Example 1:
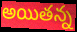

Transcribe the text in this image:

అయితన్న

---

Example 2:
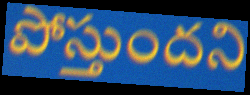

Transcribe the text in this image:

పోస్తుందని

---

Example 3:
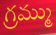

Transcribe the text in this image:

గ్రమ్ము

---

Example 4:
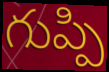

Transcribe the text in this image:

గుప్పి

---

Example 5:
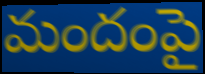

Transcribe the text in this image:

మందంపై